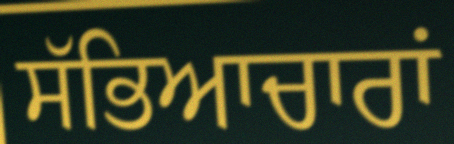
ਸੱਭਿਆਚਾਰਾਂ